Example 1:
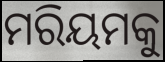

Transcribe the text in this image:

ମରିୟମକୁ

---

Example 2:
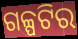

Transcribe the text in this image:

ଗଳ୍ପଟିର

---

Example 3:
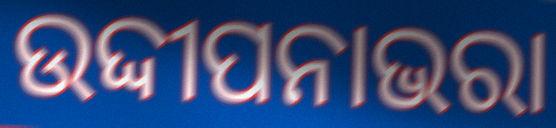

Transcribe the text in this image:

ଉଦ୍ଦୀପନାଭରା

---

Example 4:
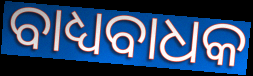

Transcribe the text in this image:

ବାଧ୍ୟବାଧକ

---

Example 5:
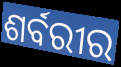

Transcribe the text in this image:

ଶର୍ବରୀର